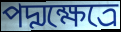
পদ্মক্ষেত্রে